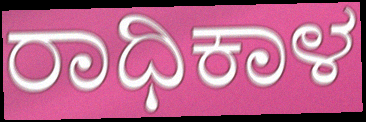
ರಾಧಿಕಾಳ